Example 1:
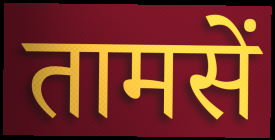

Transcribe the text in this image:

तामसें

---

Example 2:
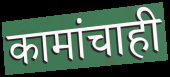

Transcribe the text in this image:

कामांचाही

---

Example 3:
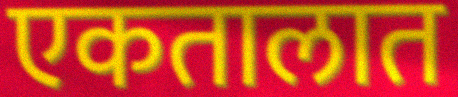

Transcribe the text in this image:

एकतालात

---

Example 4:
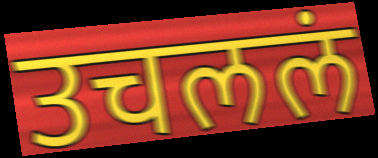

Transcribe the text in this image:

उचललं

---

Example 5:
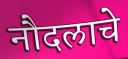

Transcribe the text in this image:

नौदलाचे